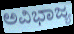
ಅವಿಭಾಜ್ಯ